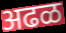
अढळ